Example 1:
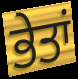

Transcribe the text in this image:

ਭੇਤਾਂ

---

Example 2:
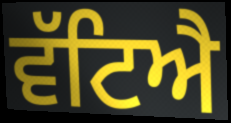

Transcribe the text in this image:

ਵੱਟਿਐ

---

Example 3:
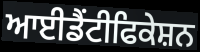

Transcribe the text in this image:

ਆਈਡੈਂਟੀਫਿਕੇਸ਼ਨ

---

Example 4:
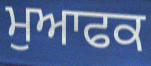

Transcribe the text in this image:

ਮੁਆਫਕ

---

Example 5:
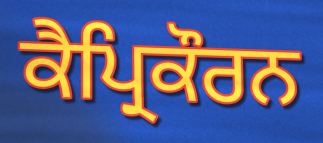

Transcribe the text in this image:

ਕੈਪ੍ਰਿਕੌਰਨ